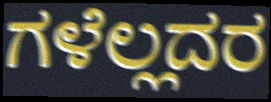
ಗಳೆಲ್ಲದರ